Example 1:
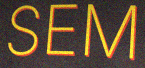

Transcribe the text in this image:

SEM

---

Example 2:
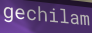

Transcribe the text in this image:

gechilam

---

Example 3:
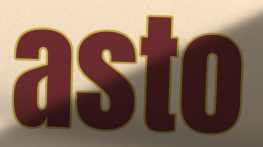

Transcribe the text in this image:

asto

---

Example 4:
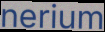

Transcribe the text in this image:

nerium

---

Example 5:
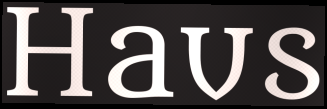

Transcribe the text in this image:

Haus